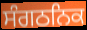
ਸੰਗਠਨਿਕ